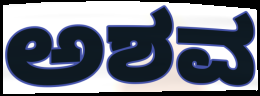
ಅಶವ